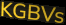
KGBVs